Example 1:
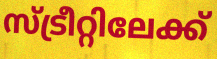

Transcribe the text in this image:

സ്ട്രീറ്റിലേക്ക്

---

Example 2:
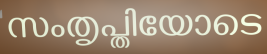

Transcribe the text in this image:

സംതൃപ്തിയോടെ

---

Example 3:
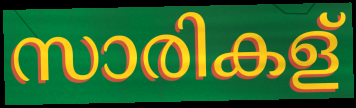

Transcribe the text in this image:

സാരികള്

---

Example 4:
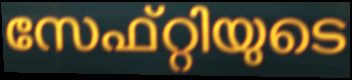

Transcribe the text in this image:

സേഫ്റ്റിയുടെ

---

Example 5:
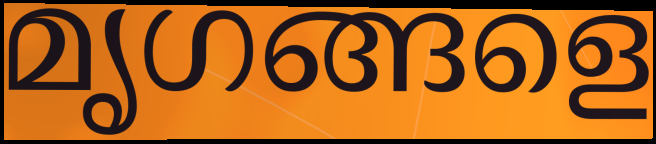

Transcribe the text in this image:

മൃഗങ്ങളെ